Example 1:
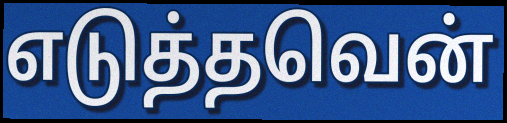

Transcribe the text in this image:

எடுத்தவென்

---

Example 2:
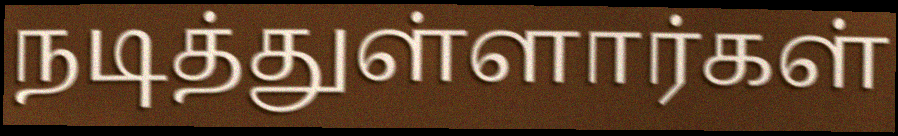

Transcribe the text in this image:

நடித்துள்ளார்கள்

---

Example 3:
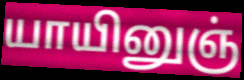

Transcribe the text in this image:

யாயினுஞ்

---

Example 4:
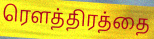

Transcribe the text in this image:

ரௌத்திரத்தை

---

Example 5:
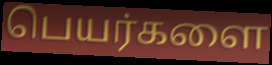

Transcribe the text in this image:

பெயர்களை